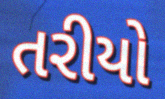
તરીયો